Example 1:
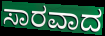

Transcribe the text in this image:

ಸಾರವಾದ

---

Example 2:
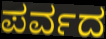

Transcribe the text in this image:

ಪರ್ವದ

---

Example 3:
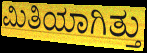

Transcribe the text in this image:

ಮಿತಿಯಾಗಿತ್ತು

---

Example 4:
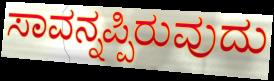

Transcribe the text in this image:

ಸಾವನ್ನಪ್ಪಿರುವುದು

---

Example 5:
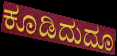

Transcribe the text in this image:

ಕೂಡಿದುದೂ